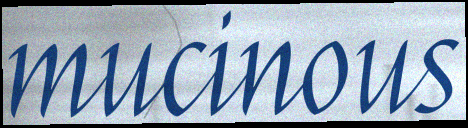
mucinous